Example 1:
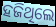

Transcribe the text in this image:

ହଜିଥିଲେ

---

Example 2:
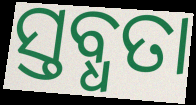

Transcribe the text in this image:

ସ୍ତବ୍ଧତା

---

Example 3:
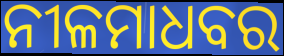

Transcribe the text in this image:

ନୀଳମାଧବର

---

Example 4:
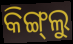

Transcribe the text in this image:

କିଙ୍ଗ୍‌ଲୁ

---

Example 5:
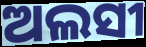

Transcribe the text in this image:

ଅଲସୀ